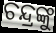
ଚନ୍ଦ୍ରଙ୍କୁ